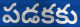
పడకకు